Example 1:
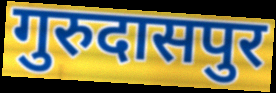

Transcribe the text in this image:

गुरुदासपुर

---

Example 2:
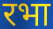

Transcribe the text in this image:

रभा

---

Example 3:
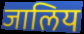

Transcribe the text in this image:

जालिय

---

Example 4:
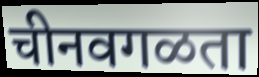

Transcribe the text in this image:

चीनवगळता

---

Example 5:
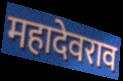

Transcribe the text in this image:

महादेवराव